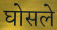
घोसले